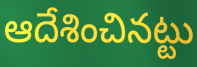
ఆదేశించినట్టు